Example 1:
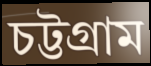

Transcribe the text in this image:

চট্টগ্রাম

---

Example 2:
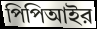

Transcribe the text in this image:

পিপিআইর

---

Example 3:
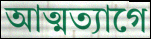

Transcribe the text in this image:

আত্মত্যাগে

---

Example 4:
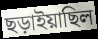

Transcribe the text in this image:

ছড়াইয়াছিল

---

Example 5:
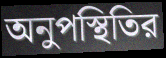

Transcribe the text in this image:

অনুপস্থিতির